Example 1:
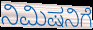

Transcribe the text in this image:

ನಿಮಿಷನಿಗೆ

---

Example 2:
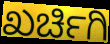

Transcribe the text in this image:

ಖರ್ಚಿಗಿ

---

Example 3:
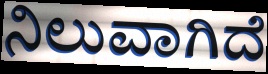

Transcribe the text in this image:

ನಿಲುವಾಗಿದೆ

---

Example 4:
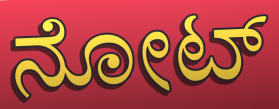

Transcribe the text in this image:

ನೋಟ್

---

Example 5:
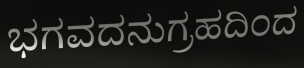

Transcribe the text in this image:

ಭಗವದನುಗ್ರಹದಿಂದ